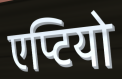
एप्टियो